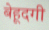
बेहूदगी